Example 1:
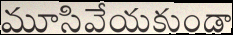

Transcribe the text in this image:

మూసివేయకుండా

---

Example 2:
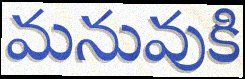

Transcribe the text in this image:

మనువుకి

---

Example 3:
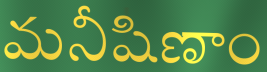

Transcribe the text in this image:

మనీషిణాం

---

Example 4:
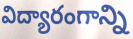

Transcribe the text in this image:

విద్యారంగాన్ని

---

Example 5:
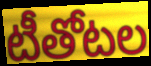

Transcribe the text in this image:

టీతోటల